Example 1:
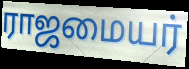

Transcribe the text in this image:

ராஜமையர்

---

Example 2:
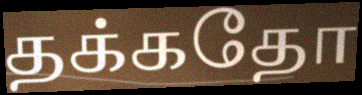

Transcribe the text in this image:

தக்கதோ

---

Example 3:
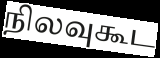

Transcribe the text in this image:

நிலவுகூட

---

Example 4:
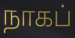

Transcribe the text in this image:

நாகப்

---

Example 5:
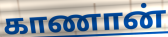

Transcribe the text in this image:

காணான்